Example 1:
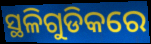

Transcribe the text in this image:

ସ୍ଥଳିଗୁଡିକରେ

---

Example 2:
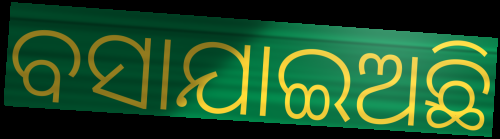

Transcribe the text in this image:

ବସାଯାଇଅଛି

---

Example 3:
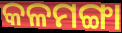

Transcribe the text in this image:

କଳମଙ୍ଗା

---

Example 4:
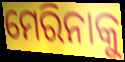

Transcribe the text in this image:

ମେରିନାକୁ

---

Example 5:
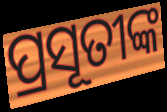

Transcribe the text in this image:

ପ୍ରସୂତୀଙ୍କ